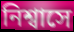
নিশ্বাসে